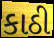
કાઠી